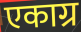
एकाग्र